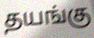
தயங்கு